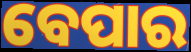
ବେପାର